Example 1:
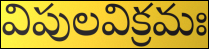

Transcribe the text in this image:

విపులవిక్రమః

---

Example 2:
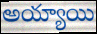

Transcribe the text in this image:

అయ్యాయి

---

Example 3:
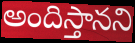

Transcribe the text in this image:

అందిస్తానని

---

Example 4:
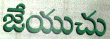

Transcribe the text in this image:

జేయుచు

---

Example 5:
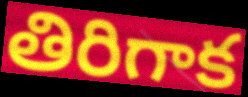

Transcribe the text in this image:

తిరిగాక